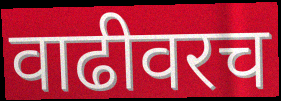
वाढीवरच